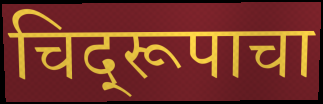
चिद्‌रूपाचा